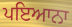
ਪਇਆਨਾ